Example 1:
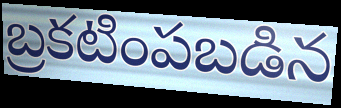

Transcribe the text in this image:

బ్రకటింపబడిన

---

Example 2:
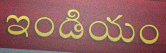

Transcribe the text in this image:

ఇండియం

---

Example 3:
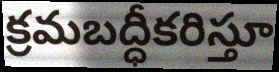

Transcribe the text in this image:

క్రమబద్ధీకరిస్తూ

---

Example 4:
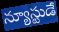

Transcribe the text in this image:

న్యూస్టుడే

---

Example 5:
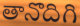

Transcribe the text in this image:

తానొదిగి